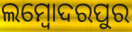
ଲମ୍ବୋଦରପୁର